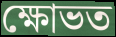
ক্ষোভত